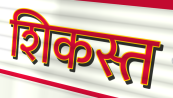
शिकस्त